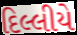
દિલ્લીયે